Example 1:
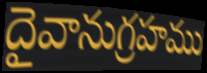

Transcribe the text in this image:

దైవానుగ్రహము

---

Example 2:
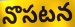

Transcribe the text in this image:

నొసటన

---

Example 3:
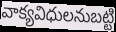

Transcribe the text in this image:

వాక్యవిధులనుబట్టి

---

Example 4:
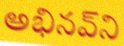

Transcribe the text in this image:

అభినవ్‌ని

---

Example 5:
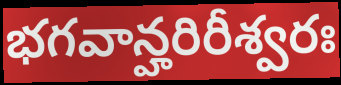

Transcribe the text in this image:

భగవాన్హరిరీశ్వరః